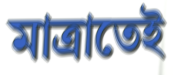
মাত্রাতেই